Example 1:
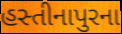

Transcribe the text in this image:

હસ્તીનાપુરના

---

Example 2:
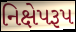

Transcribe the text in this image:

નિક્ષેપરૂપ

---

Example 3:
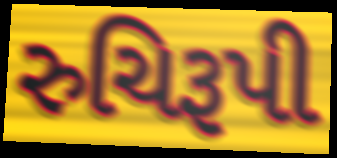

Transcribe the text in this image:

રુચિરૂપી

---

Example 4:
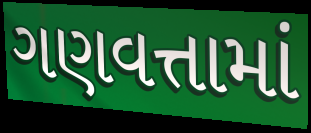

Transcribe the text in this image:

ગણવત્તામાં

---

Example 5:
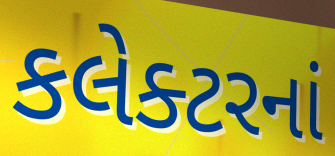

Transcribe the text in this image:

કલેક્ટરનાં